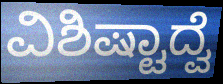
ವಿಶಿಷ್ಟಾದ್ವೆ